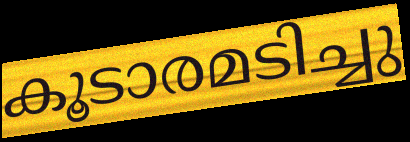
കൂടാരമടിച്ചു